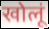
खोलूं